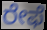
ರೇಫೆ